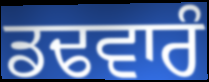
ਡਢਵਾਰੰ